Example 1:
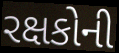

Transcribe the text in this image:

રક્ષકોની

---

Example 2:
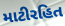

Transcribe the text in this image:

માટીરહિત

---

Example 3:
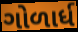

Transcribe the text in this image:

ગોળાર્ધ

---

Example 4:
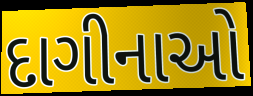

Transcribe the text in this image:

દાગીનાઓ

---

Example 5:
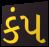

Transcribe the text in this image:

કંપ